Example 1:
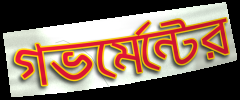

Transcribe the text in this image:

গভর্মেন্টের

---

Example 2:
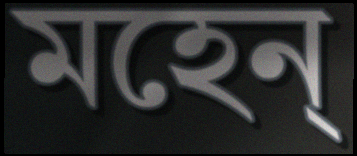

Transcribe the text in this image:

মহেন্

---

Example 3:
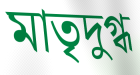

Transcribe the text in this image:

মাতৃদুগ্ধ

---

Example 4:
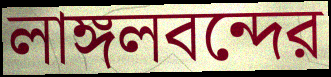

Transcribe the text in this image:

লাঙ্গলবন্দের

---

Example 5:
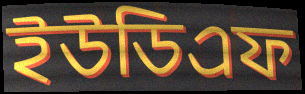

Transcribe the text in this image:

ইউডিএফ